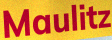
Maulitz